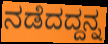
ನಡೆದದ್ದನ್ನ